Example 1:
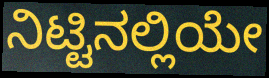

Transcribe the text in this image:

ನಿಟ್ಟಿನಲ್ಲಿಯೇ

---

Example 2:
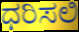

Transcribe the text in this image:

ಧರಿಸಲಿ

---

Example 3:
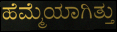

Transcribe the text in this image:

ಹೆಮ್ಮೆಯಾಗಿತ್ತು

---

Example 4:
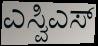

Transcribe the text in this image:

ಎಸ್ವಿಎಸ್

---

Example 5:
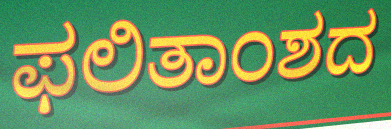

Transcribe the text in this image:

ಫಲಿತಾಂಶದ